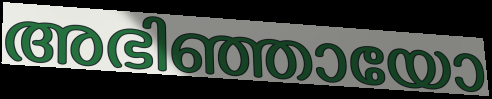
അഭിഞ്ഞായോ